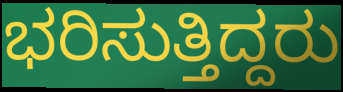
ಭರಿಸುತ್ತಿದ್ದರು